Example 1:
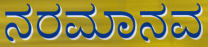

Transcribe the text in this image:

ನರಮಾನವ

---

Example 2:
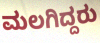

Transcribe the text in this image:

ಮಲಗಿದ್ದರು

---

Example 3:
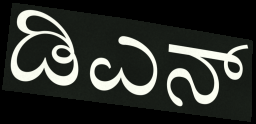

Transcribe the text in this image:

ಡಿಎನ್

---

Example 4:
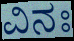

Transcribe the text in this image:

ವಿನಃ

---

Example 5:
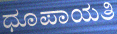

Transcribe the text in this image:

ಧೂಪಾಯತಿ